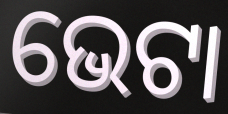
ଭେଟା